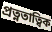
প্ৰত্নতাত্বিক